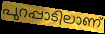
പുറപ്പാടിലാണ്